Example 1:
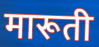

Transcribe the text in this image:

मारूती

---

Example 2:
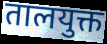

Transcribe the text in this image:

तालयुक्त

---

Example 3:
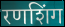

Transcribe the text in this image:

रणशिंग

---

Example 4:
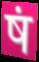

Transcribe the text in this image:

षं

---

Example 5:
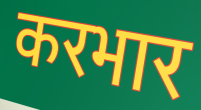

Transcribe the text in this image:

करभार